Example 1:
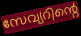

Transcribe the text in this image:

സേവ്യറിന്റെ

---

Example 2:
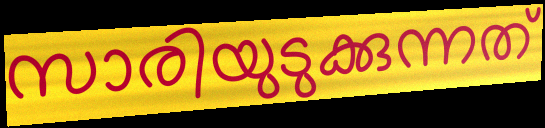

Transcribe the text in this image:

സാരിയുടുക്കുന്നത്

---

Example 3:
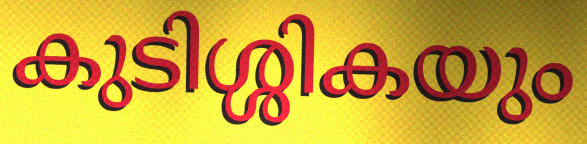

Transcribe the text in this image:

കുടിശ്ശികയും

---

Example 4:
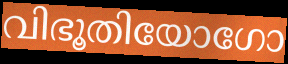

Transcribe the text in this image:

വിഭൂതിയോഗോ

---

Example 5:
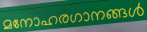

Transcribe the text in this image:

മനോഹരഗാനങ്ങൾ